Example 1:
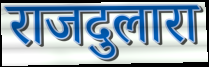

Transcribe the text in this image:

राजदुलारा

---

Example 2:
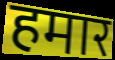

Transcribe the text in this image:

हमार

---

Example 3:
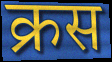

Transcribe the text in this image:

क्रस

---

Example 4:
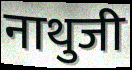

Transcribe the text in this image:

नाथुजी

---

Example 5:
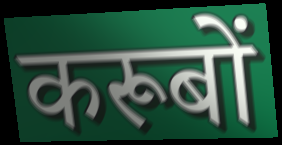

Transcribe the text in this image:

करूबों